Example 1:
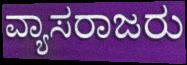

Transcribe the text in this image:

ವ್ಯಾಸರಾಜರು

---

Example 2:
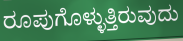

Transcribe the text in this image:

ರೂಪುಗೊಳ್ಳುತ್ತಿರುವುದು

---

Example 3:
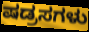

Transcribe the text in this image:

ಷಡ್ರಸಗಳು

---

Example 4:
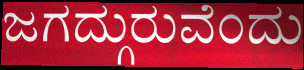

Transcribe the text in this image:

ಜಗದ್ಗುರುವೆಂದು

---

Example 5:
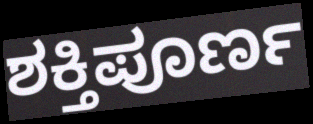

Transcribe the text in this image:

ಶಕ್ತಿಪೂರ್ಣ